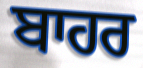
ਬਾਹਰ